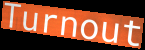
Turnout